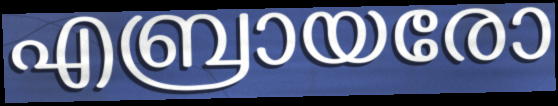
എബ്രായരോ